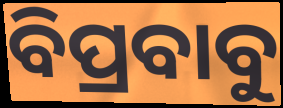
ବିପ୍ରବାବୁ